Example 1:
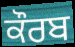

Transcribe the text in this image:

ਕੌਰਬ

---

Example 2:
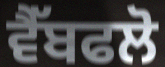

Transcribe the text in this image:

ਵੈੱਬਫਲੋ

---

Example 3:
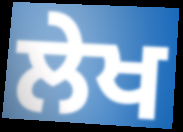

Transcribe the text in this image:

ਲੇਖ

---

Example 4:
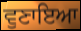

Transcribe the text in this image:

ਵੁਣਾਇਆ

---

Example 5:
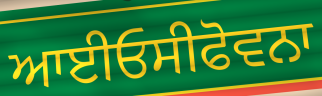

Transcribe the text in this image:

ਆਈਓਸੀਫੋਵਨਾ